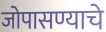
जोपासण्याचे